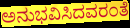
ಅನುಭವಿಸಿದವರಂತೆ